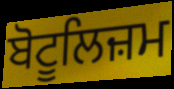
ਬੋਟੂਲਿਜ਼ਮ